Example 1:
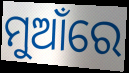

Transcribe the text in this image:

ମୁଆଁରେ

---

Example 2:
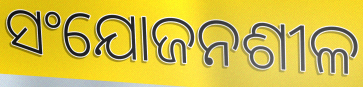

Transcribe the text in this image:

ସଂଯୋଜନଶୀଳ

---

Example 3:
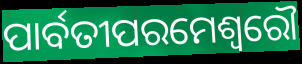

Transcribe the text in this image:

ପାର୍ବତୀପରମେଶ୍ଵରୌ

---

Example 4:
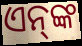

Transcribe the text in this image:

ଏନ୍‌ଙ୍କ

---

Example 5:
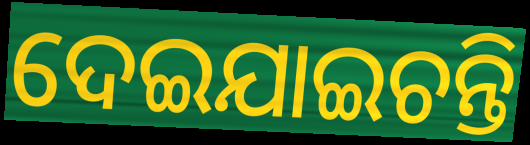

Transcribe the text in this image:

ଦେଇଯାଇଚନ୍ତି